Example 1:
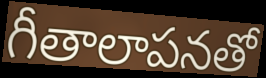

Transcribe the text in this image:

గీతాలాపనతో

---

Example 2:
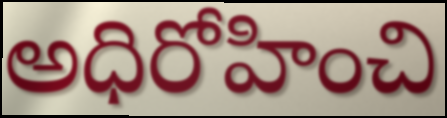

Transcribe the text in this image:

అధిరోహించి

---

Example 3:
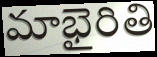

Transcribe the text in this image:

మాభైరితి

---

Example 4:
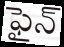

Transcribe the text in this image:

ఫైన్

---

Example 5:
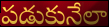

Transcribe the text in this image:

పడుకునేలా